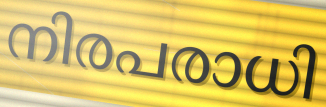
നിരപരാധി